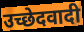
उच्छेदवादी